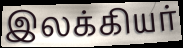
இலக்கியர்